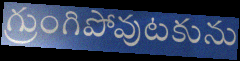
గ్రుంగిపోవుటకును